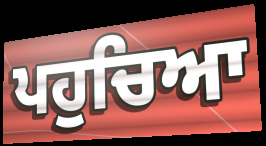
ਪਹੁਚਿਆ